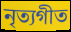
নৃত্যগীত